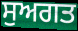
ਸੁਅਗਤ